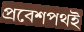
প্রবেশপথই